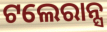
ଟଲେରାନ୍ସ